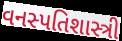
વનસ્પતિશાસ્ત્રી